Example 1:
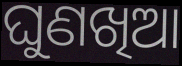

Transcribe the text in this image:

ଘୁଣଖିଆ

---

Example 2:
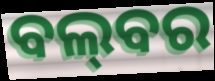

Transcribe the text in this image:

ବଲ୍‌ବର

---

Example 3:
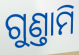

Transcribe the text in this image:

ଗୁଣ୍ତାମି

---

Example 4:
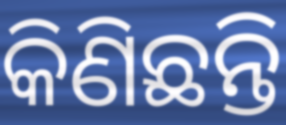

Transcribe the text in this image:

କିଣିଛନ୍ତି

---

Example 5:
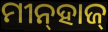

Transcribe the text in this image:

ମୀନ୍‌ହାଜ୍